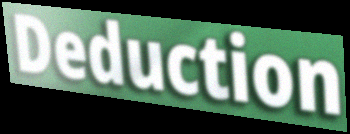
Deduction